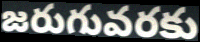
జరుగువరకు